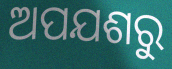
ଅପଯଶରୁ